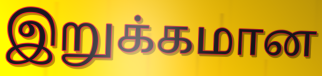
இறுக்கமான